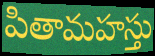
పితామహస్తు